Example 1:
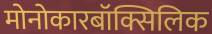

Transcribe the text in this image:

मोनोकारबॉक्सिलिक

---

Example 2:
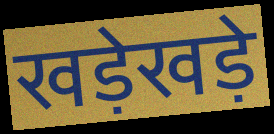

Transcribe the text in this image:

खड़ेखड़े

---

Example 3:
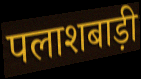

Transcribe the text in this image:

पलाशबाड़ी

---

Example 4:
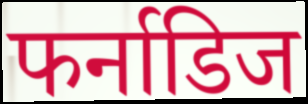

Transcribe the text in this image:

फर्नाडिज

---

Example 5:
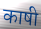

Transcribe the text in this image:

काषी